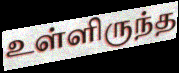
உள்ளிருந்த